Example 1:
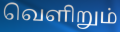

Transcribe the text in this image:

வெளிறும்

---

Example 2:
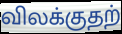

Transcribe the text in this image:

விலக்குதற்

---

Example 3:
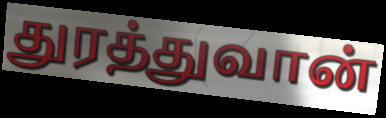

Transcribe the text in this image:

துரத்துவான்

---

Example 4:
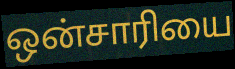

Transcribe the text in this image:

ஒன்சாரியை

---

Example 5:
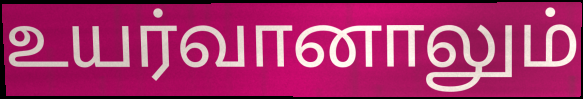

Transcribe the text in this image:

உயர்வானாலும்